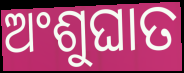
ଅଂଶୁଘାତ